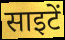
साइटें